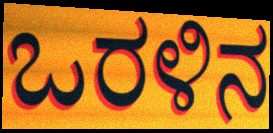
ಒರಳಿನ